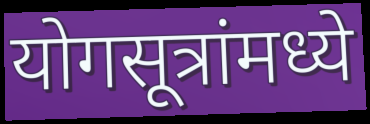
योगसूत्रांमध्ये